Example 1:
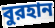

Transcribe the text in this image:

বুরহান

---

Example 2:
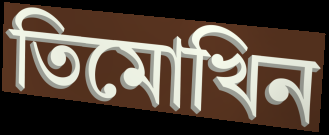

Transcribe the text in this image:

তিমোখিন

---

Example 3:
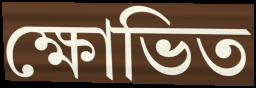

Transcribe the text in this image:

ক্ষোভিত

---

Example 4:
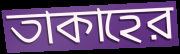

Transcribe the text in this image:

তাকাহের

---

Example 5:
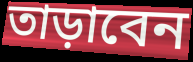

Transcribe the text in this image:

তাড়াবেন